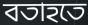
বতাহতে